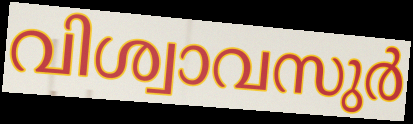
വിശ്വാവസുർ